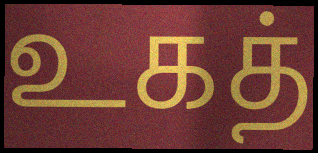
உகத்